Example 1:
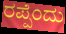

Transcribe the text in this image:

ರಪ್ಪೆಂದು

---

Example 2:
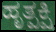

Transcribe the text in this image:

ಹೃತ್ಪಕ್ಷಿ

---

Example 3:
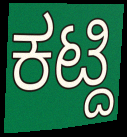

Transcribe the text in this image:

ಕಟ್ದಿ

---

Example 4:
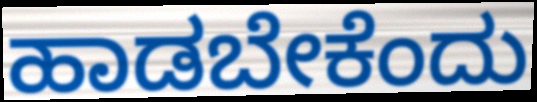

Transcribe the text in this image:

ಹಾಡಬೇಕೆಂದು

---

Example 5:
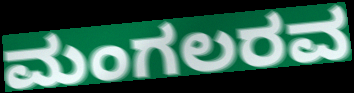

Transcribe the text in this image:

ಮಂಗಲರವ